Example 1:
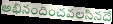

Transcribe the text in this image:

అభినందించవలసినదే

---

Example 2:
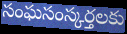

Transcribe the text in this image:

సంఘసంస్కర్తలకు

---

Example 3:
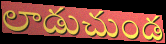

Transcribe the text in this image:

లాడుచుండ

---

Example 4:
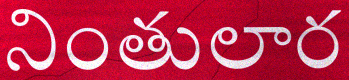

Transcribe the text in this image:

నింతులార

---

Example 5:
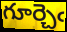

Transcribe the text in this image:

గూర్చెఁ